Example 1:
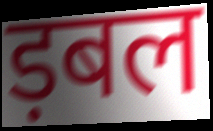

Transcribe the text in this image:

ड़बल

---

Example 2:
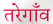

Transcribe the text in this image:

तरेगाँव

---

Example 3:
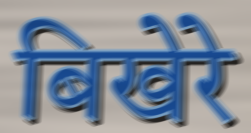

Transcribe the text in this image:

बिखेरे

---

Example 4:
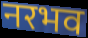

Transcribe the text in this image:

नरभव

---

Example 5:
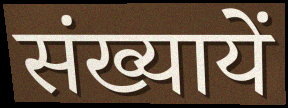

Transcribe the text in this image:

संख्यायें